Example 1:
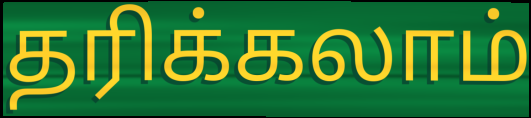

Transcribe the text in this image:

தரிக்கலாம்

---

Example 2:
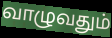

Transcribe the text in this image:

வாழுவதும்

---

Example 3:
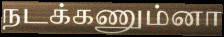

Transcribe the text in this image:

நடக்கணும்னா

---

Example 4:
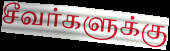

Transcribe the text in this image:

சீவர்களுக்கு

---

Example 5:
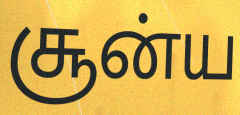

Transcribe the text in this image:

சூன்ய